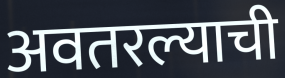
अवतरल्याची